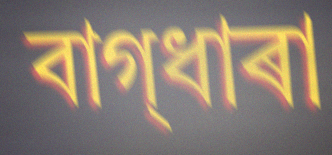
বাগ্‌ধাৰা